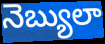
నెబ్యులా